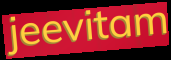
jeevitam